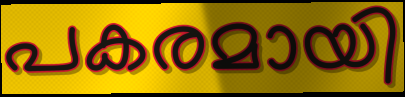
പകരമായി